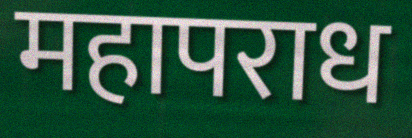
महापराध